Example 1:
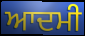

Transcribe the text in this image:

ਆਦਮੀ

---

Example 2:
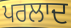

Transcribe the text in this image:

ਪਰਲਾਦ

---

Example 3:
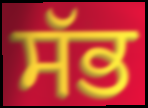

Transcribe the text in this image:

ਸੱਭ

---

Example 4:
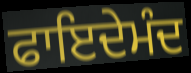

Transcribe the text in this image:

ਫਾਇਦੇਮੰਦ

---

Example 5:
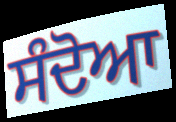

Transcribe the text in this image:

ਸੰਦੋਆ